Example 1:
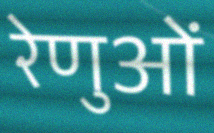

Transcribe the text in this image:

रेणुओं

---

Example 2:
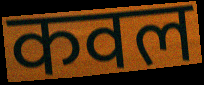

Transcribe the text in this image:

कवल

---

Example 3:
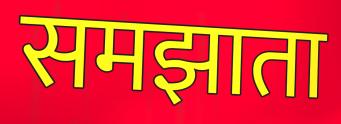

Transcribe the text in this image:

समझाता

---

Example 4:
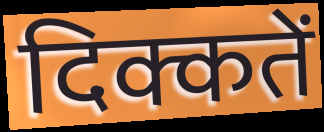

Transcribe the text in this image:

दिक्कतें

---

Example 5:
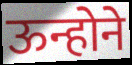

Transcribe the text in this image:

ऊन्होने